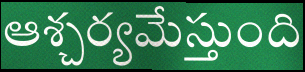
ఆశ్చర్యమేస్తుంది